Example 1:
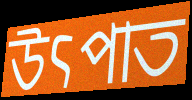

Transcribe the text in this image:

উৎপাত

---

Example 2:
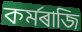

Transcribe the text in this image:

কৰ্মৰাজি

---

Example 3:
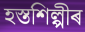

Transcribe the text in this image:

হস্তশিল্পীৰ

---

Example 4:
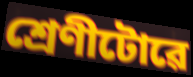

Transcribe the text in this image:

শ্ৰেণীটোৱে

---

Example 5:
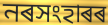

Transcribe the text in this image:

নৰসংহাৰৰ